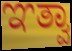
ಞತ್ವಾ